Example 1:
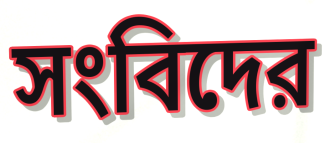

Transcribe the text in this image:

সংবিদের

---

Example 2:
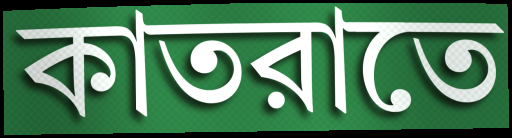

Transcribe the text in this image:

কাতরাতে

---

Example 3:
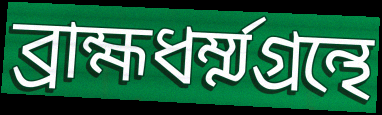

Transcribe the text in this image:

ব্রাহ্মধর্ম্মগ্রন্থে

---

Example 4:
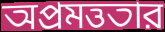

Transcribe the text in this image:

অপ্রমত্ততার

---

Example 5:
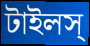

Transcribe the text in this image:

টাইলস্